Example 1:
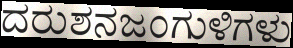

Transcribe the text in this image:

ದರುಶನಜಂಗುಳಿಗಳು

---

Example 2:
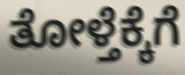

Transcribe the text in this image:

ತೋಳ್ತೆಕ್ಕೆಗೆ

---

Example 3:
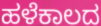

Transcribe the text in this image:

ಹಳೆಕಾಲದ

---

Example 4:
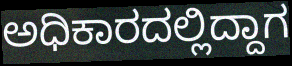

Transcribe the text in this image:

ಅಧಿಕಾರದಲ್ಲಿದ್ದಾಗ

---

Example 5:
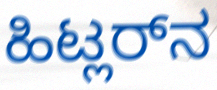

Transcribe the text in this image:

ಹಿಟ್ಲರ್‌ನ